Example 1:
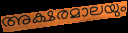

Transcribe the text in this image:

അക്ഷരമാലയും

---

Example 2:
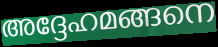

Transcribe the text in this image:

അദ്ദേഹമങ്ങനെ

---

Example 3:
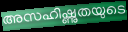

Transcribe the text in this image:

അസഹിഷ്ണുതയുടെ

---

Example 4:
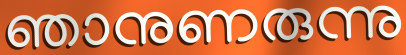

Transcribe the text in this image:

ഞാനുണരുന്നു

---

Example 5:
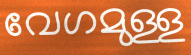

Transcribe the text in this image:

വേഗമുള്ള